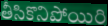
తీసికొనిపోయిరి